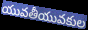
యువతీయువకుల